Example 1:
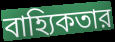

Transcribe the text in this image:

বাহ্যিকতার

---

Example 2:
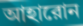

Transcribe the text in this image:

আহারোন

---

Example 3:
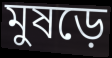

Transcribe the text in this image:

মুষড়ে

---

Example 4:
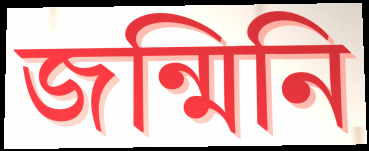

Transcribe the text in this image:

জন্মিনি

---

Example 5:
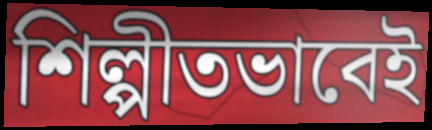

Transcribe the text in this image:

শিল্পীতভাবেই